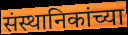
संस्थानिकांच्या